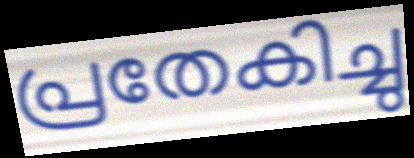
പ്രതേകിച്ചു